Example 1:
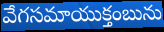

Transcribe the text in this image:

వేగసమాయుక్తంబును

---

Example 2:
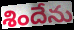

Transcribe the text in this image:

శిందేను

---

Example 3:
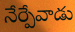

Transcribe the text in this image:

నేర్పేవాడు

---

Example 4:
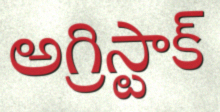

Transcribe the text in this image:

అగ్రిస్టాక్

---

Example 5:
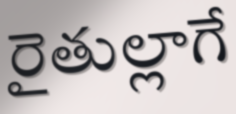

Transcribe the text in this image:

రైతుల్లాగే